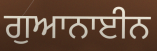
ਗੁਆਨਾਈਨ